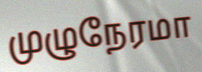
முழுநேரமா